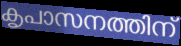
കൃപാസനത്തിന്